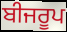
ਬੀਜਰੂਪ